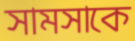
সামসাকে